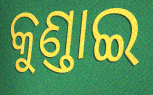
କୁଣ୍ଡାଇ